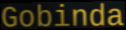
Gobinda